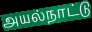
அயல்நாட்டு